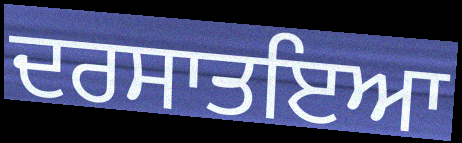
ਦਰਸਾਤਇਆ